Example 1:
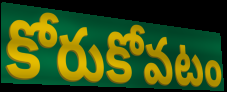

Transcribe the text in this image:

కోరుకోవటం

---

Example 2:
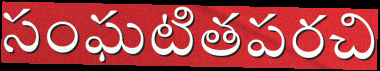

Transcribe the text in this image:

సంఘటితపరచి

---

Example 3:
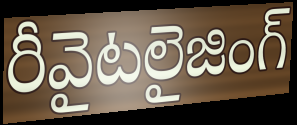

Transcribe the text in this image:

రీవైటలైజింగ్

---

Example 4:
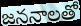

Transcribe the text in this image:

జననాలతో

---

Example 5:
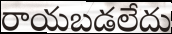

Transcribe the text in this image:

రాయబడలేదు